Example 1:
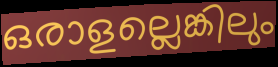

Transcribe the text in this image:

ഒരാളല്ലെങ്കിലും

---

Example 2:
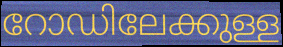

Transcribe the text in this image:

റോഡിലേക്കുള്ള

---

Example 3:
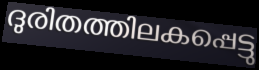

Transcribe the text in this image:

ദുരിതത്തിലകപ്പെട്ടു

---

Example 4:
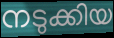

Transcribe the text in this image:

നടുക്കിയ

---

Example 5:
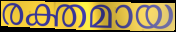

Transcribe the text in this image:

രക്തമായ